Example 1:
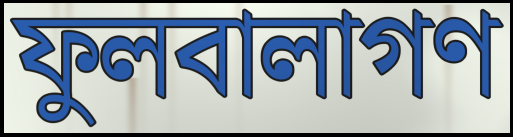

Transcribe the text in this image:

ফুলবালাগণ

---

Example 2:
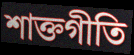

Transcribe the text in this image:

শাক্তগীতি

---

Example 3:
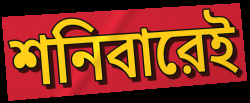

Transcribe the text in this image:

শনিবারেই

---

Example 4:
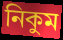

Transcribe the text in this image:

নিকুম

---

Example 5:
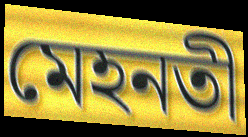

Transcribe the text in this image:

মেহনতী